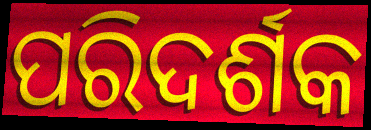
ପରିଦର୍ଶକ